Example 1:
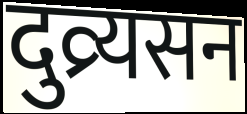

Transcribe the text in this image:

दुव्र्यसन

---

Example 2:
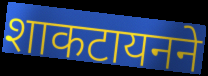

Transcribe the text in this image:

शाकटायनने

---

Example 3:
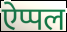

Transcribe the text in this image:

ऐप्पल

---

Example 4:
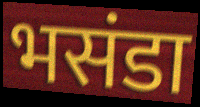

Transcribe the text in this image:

भसंडा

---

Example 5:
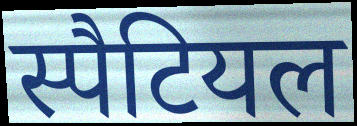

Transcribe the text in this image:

स्पैटियल